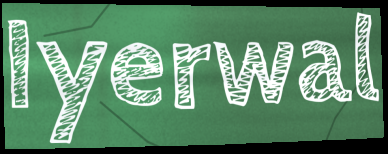
Iyerwal